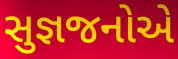
સુજ્ઞજનોએ